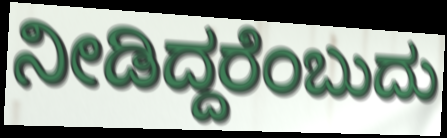
ನೀಡಿದ್ದರೆಂಬುದು